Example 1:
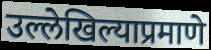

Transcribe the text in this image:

उल्लेखिल्याप्रमाणे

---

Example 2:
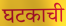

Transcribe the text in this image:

घटकाची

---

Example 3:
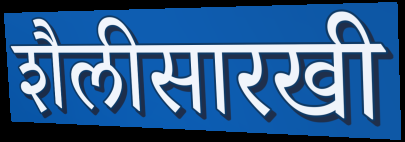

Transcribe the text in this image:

शैलीसारखी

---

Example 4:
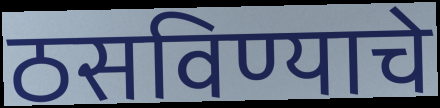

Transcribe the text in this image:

ठसविण्याचे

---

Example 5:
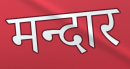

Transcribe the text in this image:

मन्दार